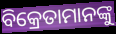
ବିକ୍ରେତାମାନଙ୍କୁ